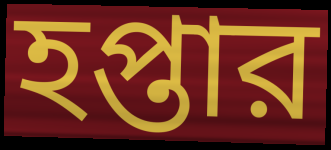
হপ্তার